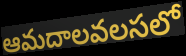
ఆమదాలవలసలో